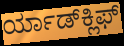
ರ್ಯಾಡ್‍ಕ್ಲಿಫ್